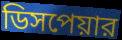
ডিসপেয়ার